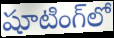
షూటింగ్‌లో